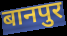
बानपुर